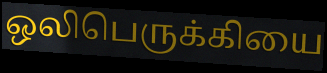
ஒலிபெருக்கியை